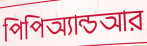
পিপিঅ্যান্ডআর